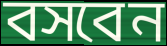
বসবেন